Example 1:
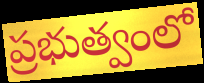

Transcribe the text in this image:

ప్రభుత్వంలో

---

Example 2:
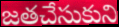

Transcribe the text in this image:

జతచేసుకుని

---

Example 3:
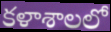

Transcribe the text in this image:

కళాశాలలో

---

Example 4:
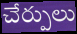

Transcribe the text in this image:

చేర్పులు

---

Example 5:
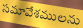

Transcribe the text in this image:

సమావేశములను